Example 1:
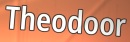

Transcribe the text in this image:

Theodoor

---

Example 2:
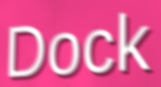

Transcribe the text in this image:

Dock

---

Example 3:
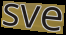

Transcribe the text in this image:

sve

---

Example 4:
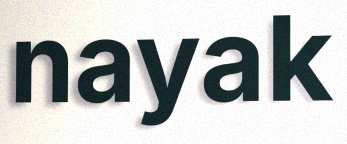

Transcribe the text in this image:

nayak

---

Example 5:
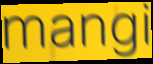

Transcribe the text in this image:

mangi